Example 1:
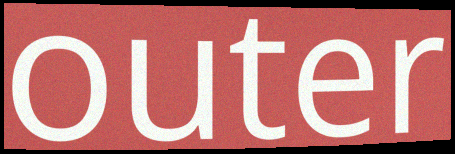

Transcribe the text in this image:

outer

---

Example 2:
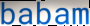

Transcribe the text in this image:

babam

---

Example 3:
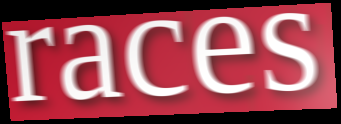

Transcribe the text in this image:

races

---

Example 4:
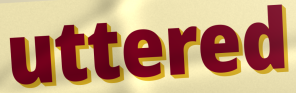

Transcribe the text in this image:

uttered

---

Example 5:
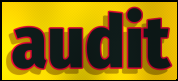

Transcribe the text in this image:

audit